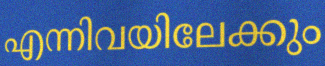
എന്നിവയിലേക്കും